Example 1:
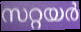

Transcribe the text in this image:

സറ്റയർ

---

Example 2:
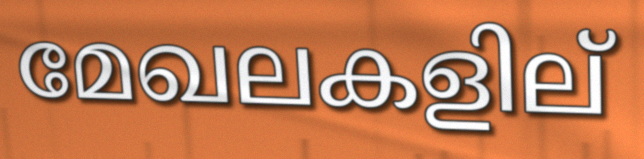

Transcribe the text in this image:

മേഖലകളില്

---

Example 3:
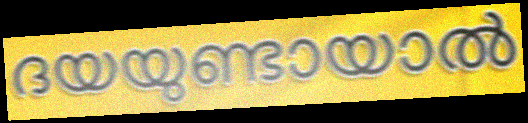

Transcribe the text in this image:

ദയയുണ്ടായാൽ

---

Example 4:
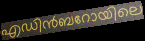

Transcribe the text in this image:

എഡിൻബറോയിലെ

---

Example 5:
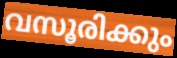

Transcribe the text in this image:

വസൂരിക്കും